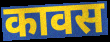
कावस